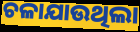
ଚଳାଯାଉଥିଲା